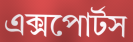
এক্সপোর্টস